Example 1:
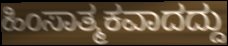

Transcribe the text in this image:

ಹಿಂಸಾತ್ಮಕವಾದದ್ದು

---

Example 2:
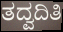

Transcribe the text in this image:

ತದ್ವದಿತಿ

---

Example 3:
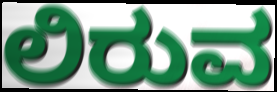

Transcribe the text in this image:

ಲಿರುವ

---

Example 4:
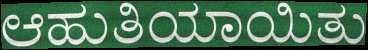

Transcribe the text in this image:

ಆಹುತಿಯಾಯಿತು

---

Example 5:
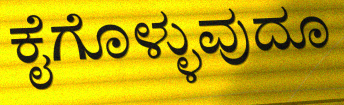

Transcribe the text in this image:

ಕೈಗೊಳ್ಳುವುದೂ